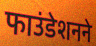
फाउंडेशनने